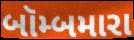
બૉમ્બમારા